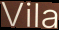
Vila